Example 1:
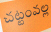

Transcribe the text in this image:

చట్టంవల్ల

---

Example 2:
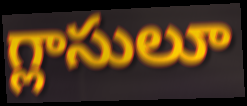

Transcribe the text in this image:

గ్లాసులూ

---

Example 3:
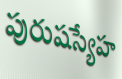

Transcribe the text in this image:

పురుషస్యేహ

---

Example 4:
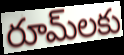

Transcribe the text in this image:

రూమ్‌లకు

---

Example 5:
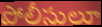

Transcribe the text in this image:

పోలీసులూ